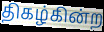
திகழ்கின்ற